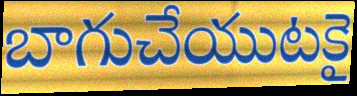
బాగుచేయుటకై